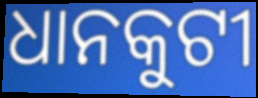
ଧାନକୁଟୀ